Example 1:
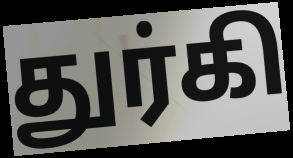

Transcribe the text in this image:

துர்கி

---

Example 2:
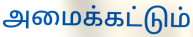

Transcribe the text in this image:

அமைக்கட்டும்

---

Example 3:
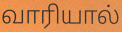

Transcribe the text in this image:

வாரியால்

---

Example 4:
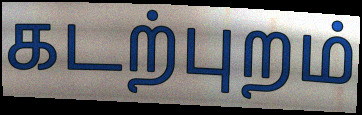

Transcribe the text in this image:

கடற்புறம்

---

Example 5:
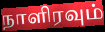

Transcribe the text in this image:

நாளிரவும்